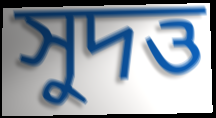
সুদত্ত